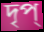
দৃপ্